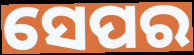
ସେପର